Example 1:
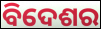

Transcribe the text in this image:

ବିଦେଶର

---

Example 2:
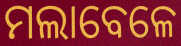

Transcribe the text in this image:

ମଲାବେଳେ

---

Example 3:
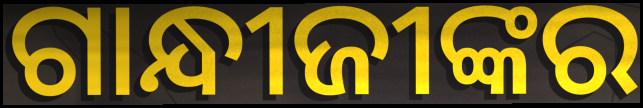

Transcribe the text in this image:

ଗାନ୍ଧୀଜୀଙ୍କର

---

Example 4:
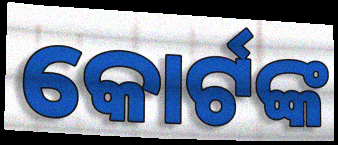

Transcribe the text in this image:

କୋର୍ଟଙ୍କ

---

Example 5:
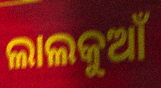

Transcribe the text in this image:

ଲାଲକୁଆଁ